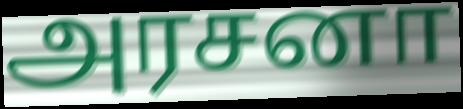
அரசனா